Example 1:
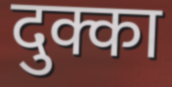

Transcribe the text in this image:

दुक्का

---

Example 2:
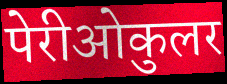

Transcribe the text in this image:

पेरीओकुलर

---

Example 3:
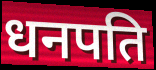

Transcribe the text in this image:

धनपति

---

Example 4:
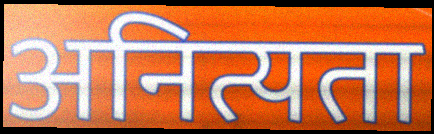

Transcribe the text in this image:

अनित्यता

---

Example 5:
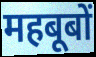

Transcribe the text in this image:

महबूबों